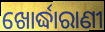
ଖୋର୍ଦ୍ଧାରାଣୀ